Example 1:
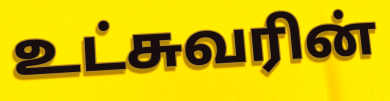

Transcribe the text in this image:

உட்சுவரின்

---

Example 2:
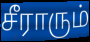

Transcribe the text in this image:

சீராரும்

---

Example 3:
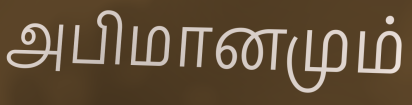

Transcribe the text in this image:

அபிமானமும்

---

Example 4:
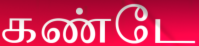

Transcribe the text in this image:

கண்டே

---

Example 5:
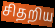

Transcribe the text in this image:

சிதறிய